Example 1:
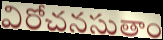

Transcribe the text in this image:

విరోచనసుతాం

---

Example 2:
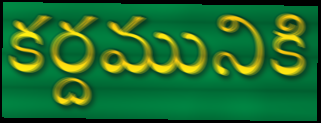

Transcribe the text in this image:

కర్దమునికి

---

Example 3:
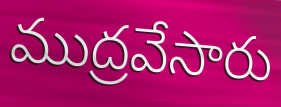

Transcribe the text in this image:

ముద్రవేసారు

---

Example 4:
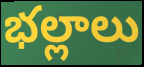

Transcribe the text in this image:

భల్లాలు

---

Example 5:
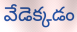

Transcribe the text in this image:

వేడెక్కడం